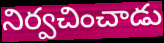
నిర్వచించాడు